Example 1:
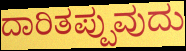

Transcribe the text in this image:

ದಾರಿತಪ್ಪುವುದು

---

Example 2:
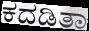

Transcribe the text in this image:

ಕದಡಿತಾ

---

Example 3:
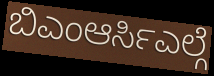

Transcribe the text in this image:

ಬಿಎಂಆರ್ಸಿಎಲ್ಗೆ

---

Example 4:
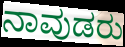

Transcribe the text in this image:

ನಾವುಡರು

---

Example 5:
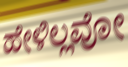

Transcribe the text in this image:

ಹೇಳಿಲ್ಲವೋ